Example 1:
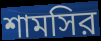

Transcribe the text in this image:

শামসির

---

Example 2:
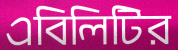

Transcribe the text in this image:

এবিলিটির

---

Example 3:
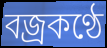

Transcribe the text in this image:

বজ্রকণ্ঠে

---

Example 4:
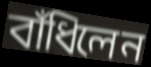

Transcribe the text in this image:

বাঁধিলেন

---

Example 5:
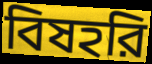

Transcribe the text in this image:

বিষহরি